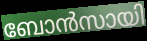
ബോൻസായി